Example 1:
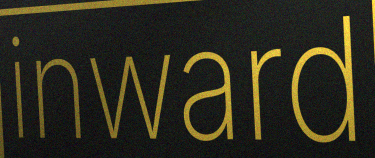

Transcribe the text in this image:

inward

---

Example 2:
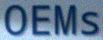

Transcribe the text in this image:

OEMs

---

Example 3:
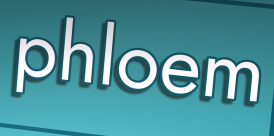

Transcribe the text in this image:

phloem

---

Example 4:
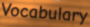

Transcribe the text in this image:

Vocabulary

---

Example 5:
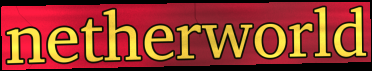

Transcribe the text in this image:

netherworld